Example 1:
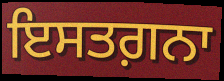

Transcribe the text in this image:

ਇਸਤਗ਼ਨਾ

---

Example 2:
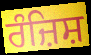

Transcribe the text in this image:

ਰੰਜ਼ਿਸ਼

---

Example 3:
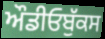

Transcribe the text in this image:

ਔਡੀਓਬੁੱਕਸ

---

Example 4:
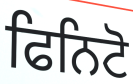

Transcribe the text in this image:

ਫਿਨਿਟੋ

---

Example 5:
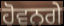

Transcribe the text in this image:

ਹੋਵਨਗੇ